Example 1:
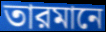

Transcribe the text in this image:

তারমানে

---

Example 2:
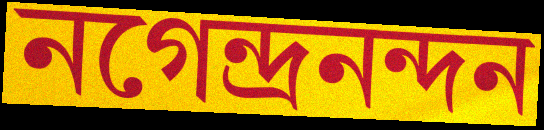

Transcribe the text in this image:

নগেন্দ্রনন্দন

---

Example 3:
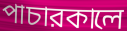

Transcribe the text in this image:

পাচারকালে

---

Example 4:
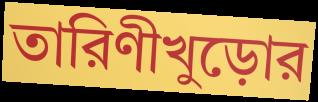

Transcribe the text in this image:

তারিণীখুড়োর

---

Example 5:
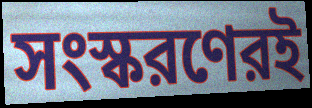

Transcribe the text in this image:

সংস্করণেরই